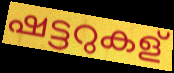
ഷട്ടറുകള്